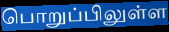
பொறுப்பிலுள்ள